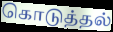
கொடுத்தல்